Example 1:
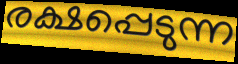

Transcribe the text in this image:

രക്ഷപ്പെടുന്ന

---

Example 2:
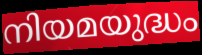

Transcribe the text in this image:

നിയമയുദ്ധം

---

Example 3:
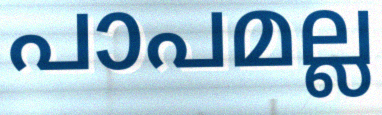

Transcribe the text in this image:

പാപമല്ല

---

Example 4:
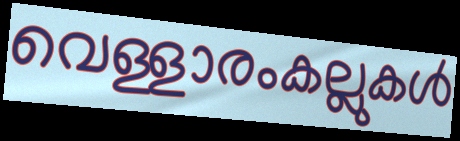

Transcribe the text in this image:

വെള്ളാരംകല്ലുകൾ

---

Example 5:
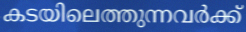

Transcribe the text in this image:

കടയിലെത്തുന്നവർക്ക്